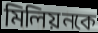
মিলিয়নকে